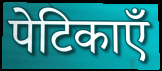
पेटिकाएँ